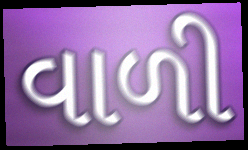
વાળી